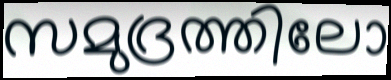
സമുദ്രത്തിലോ